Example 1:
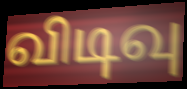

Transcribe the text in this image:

விடிவு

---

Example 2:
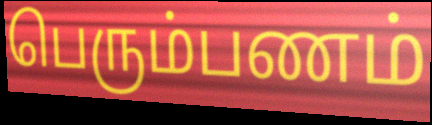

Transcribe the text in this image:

பெரும்பணம்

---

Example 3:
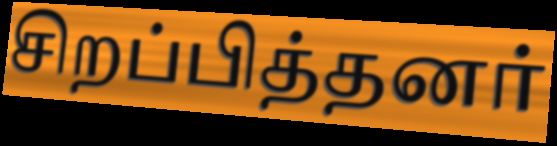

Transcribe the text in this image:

சிறப்பித்தனர்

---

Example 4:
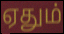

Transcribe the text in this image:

ஏதும்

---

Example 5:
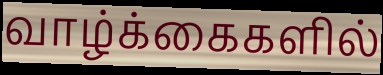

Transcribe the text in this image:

வாழ்க்கைகளில்